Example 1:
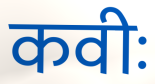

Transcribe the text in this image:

कवीः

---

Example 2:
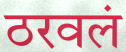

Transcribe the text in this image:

ठरवलं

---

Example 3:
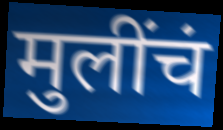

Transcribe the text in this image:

मुलींचं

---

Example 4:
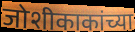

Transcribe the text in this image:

जोशीकाकांच्या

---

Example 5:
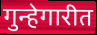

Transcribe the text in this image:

गुन्हेगारीत